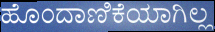
ಹೊಂದಾಣಿಕೆಯಾಗಿಲ್ಲ